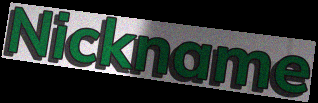
Nickname